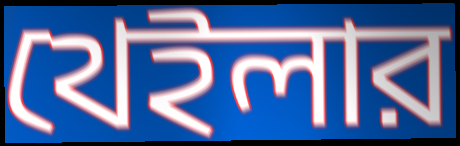
থেইলার